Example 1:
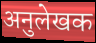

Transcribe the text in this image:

अनुलेखक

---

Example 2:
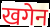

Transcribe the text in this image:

खगेन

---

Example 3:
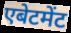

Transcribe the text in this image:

एबेटमेंट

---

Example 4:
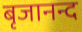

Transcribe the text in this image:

बृजानन्द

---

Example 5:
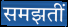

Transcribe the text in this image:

समझतीं